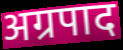
अग्रपाद